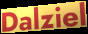
Dalziel